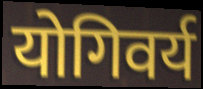
योगिवर्य